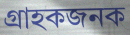
গ্ৰাহকজনক